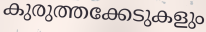
കുരുത്തക്കേടുകളും